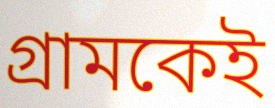
গ্রামকেই